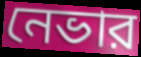
নেভার